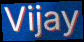
Vijay